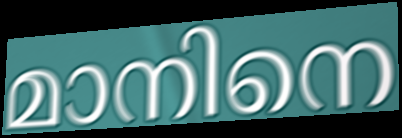
മാനിനെ